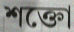
শক্তো